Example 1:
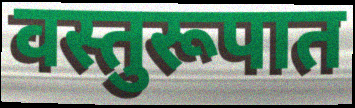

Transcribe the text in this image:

वस्तुरूपात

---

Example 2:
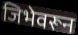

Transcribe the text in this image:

जिभेवरून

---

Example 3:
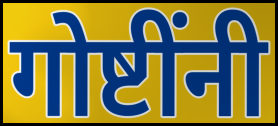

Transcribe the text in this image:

गोष्टींनी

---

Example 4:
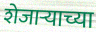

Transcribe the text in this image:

शेजाऱ्याच्या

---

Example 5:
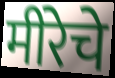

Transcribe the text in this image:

मीरेचे